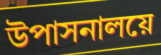
উপাসনালয়ে